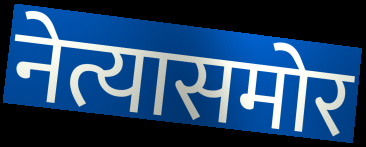
नेत्यासमोर